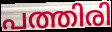
പത്തിരി